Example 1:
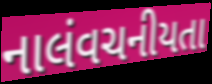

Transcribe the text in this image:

નાલંવચનીયતા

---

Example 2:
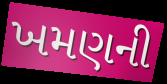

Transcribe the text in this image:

ખમણની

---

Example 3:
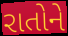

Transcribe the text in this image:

રાતોને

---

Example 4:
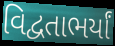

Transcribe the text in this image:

વિદ્વતાભર્યાં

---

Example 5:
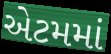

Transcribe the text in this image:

એટમમાં